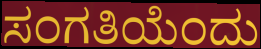
ಸಂಗತಿಯೆಂದು